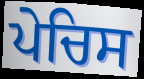
ਪੇਚਿਸ